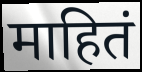
माहितं